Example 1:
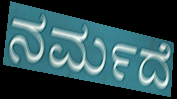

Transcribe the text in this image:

ನರ್ಮದೆ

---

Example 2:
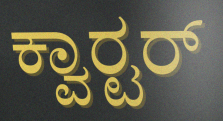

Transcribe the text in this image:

ಕ್ವಾರ‍್ಟರ್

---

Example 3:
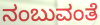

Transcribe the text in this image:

ನಂಬುವಂತೆ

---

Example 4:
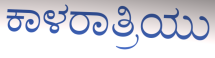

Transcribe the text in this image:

ಕಾಳರಾತ್ರಿಯು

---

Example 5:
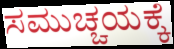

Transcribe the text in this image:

ಸಮುಚ್ಚಯಕ್ಕೆ